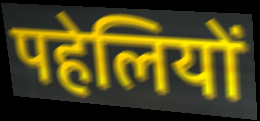
पहेलियों